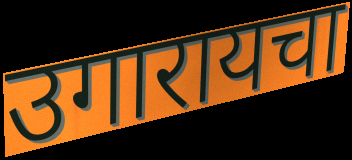
उगारायचा